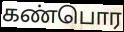
கண்பொர